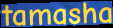
tamasha